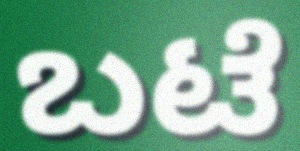
ಬಟೆ